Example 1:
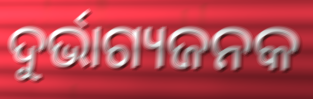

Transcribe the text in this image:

ଦୁର୍ଭାଗ୍ୟଜନକ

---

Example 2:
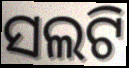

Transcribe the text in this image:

ସଲଟି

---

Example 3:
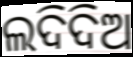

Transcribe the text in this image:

ଲଦିଦିଅ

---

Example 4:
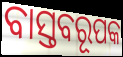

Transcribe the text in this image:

ବାସ୍ତବରୂପକ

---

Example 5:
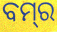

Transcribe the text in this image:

ବମ୍‌ର